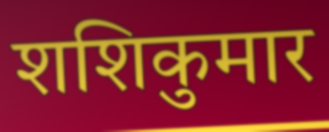
शशिकुमार